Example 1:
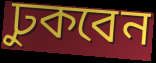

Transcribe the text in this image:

ঢুকবেন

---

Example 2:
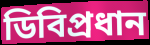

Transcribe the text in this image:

ডিবিপ্রধান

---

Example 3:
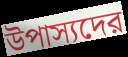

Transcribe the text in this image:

উপাস্যদের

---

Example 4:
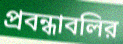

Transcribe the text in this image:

প্রবন্ধাবলির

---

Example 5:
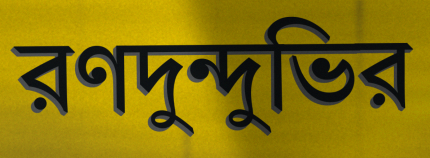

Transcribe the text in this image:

রণদুন্দুভির